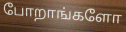
போறாங்களோ